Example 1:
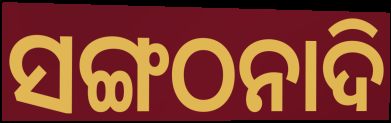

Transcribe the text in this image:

ସଙ୍ଗଠନାଦି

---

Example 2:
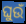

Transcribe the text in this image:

ଘୁଉଁ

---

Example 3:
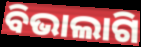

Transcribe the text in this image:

ବିଭାଲାଗି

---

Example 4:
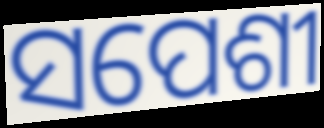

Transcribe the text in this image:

ସପେଶୀ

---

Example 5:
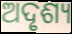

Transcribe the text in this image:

ଅଦୃଶ୍ୟ